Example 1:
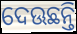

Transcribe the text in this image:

ଦେଊଛନ୍ତି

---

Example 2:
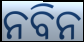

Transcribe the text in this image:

ନବିନ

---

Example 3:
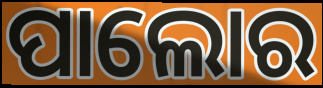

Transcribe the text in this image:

ପାଲୋର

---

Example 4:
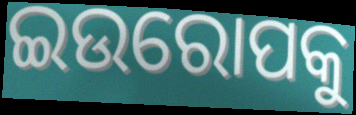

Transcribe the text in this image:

ଇଉରୋପକୁ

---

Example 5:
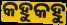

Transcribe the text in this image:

କହୁକହୁ